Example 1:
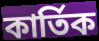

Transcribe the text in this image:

কাৰ্তিক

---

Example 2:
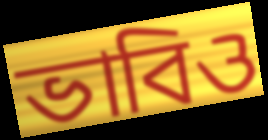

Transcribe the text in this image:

ভাবিও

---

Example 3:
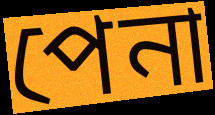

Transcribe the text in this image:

পেনা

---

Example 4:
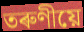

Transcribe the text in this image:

তৰুণীয়ে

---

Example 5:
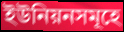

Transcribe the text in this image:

ইউনিয়নসমূহে